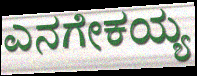
ಎನಗೇಕಯ್ಯ